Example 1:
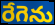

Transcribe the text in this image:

రేగెను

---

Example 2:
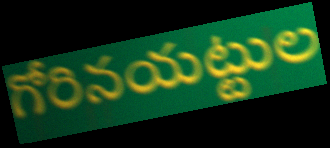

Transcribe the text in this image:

గోరినయట్టుల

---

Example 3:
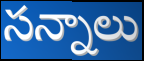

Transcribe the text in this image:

సన్నాలు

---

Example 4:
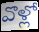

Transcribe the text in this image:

వొళ్లో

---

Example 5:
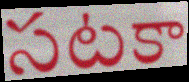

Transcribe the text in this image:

సటకా